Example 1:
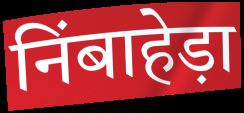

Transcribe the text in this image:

निंबाहेड़ा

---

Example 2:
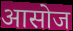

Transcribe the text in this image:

आसोज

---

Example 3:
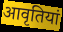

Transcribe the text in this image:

आवृतियां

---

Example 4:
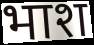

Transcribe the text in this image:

भाश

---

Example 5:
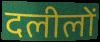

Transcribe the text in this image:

दलीलों